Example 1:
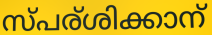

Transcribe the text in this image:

സ്പര്ശിക്കാന്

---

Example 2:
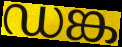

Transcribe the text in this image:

ഡങ്ക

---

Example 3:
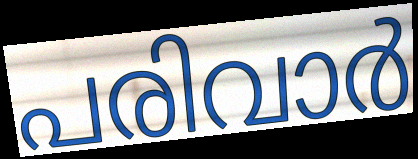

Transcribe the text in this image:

പരിവാർ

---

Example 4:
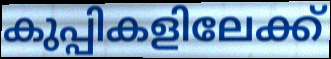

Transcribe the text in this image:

കുപ്പികളിലേക്ക്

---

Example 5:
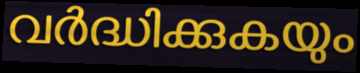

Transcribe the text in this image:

വർദ്ധിക്കുകയും